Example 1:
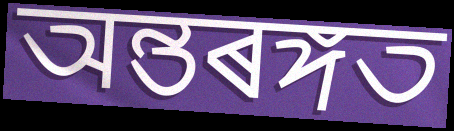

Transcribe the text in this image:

অন্তৰঙ্গত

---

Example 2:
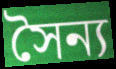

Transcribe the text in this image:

সৈন্য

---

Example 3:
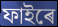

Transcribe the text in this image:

ফাইৰে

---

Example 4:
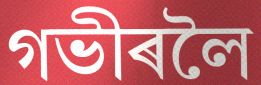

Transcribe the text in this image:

গভীৰলৈ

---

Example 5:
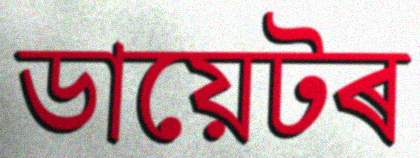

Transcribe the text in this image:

ডায়েটৰ